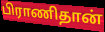
பிராணிதான்